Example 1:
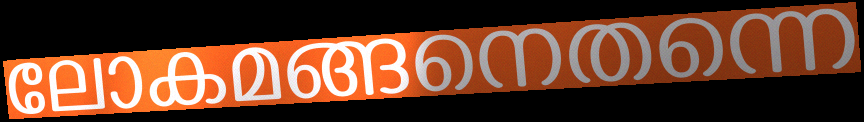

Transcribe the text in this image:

ലോകമങ്ങനെതന്നെ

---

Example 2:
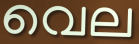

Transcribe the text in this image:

വെല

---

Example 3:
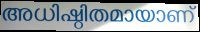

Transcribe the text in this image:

അധിഷ്ഠിതമായാണ്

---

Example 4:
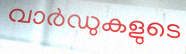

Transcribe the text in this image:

വാർഡുകളുടെ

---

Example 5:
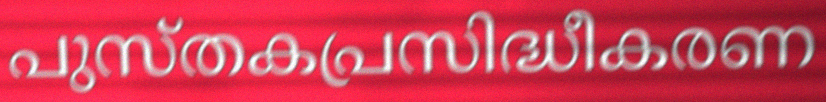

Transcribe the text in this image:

പുസ്തകപ്രസിദ്ധീകരണ